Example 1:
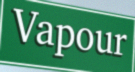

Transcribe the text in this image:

Vapour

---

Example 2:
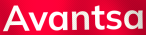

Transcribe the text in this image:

Avantsa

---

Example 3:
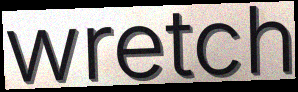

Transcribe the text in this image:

wretch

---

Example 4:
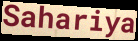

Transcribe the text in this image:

Sahariya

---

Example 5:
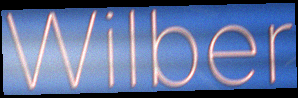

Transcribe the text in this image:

Wilber